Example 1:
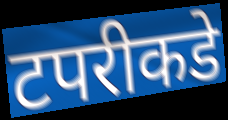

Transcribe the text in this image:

टपरीकडे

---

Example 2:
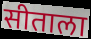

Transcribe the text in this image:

सीताला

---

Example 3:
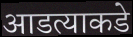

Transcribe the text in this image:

आडत्याकडे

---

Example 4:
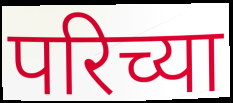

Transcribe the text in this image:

परिच्या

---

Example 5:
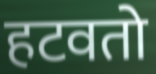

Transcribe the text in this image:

हटवतो